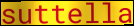
suttella